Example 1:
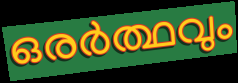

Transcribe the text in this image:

ഒരർത്ഥവും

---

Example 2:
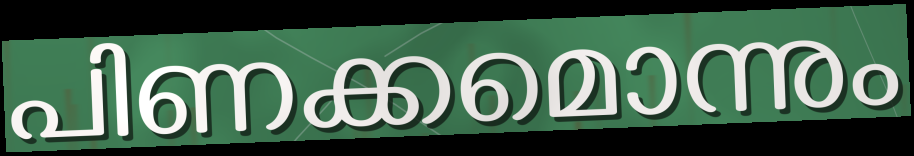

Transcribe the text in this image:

പിണക്കമൊന്നും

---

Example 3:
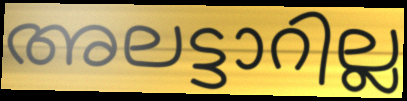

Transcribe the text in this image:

അലട്ടാറില്ല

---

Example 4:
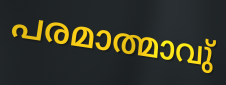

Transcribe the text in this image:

പരമാത്മാവു്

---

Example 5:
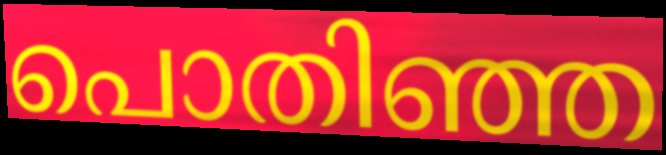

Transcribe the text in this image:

പൊതിഞ്ഞ